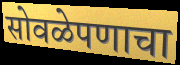
सोवळेपणाचा